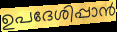
ഉപദേശിപ്പാൻ